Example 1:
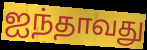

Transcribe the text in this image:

ஐந்தாவது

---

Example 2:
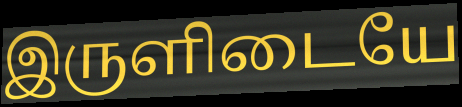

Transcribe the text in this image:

இருளிடையே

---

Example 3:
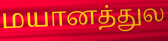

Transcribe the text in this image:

மயானத்துல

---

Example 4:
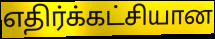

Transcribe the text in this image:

எதிர்க்கட்சியான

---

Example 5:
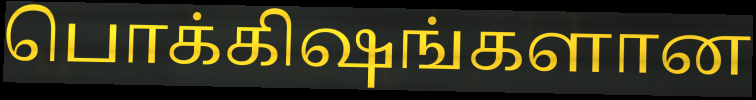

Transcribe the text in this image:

பொக்கிஷங்களான